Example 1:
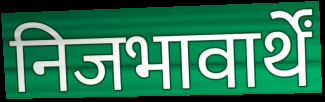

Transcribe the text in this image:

निजभावार्थें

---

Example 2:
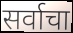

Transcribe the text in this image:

सर्वाचा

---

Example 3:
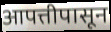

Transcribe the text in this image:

आपत्तीपासून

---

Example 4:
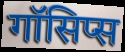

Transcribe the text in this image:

गॉसिप्स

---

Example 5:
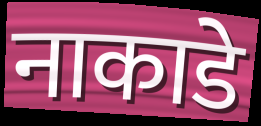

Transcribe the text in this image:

नाकाडे